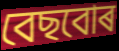
বেছবোৰ